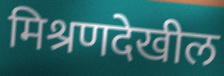
मिश्रणदेखील